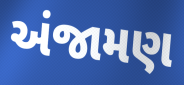
અંજામણ